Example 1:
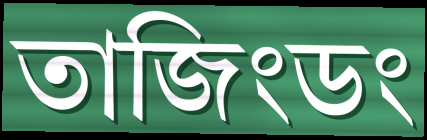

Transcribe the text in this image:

তাজিংডং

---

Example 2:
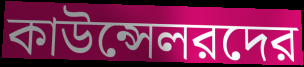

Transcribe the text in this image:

কাউন্সেলরদের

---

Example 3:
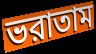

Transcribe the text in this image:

ভরাতাম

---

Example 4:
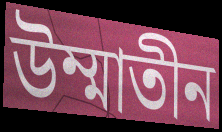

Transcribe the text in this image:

উম্মাতীন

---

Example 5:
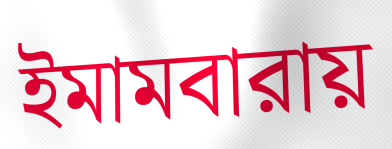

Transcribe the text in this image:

ইমামবারায়